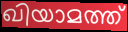
ഖിയാമത്ത്